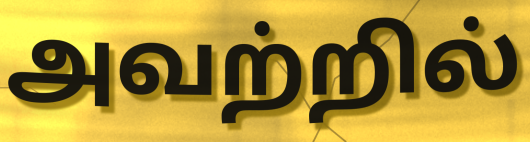
அவற்றில்